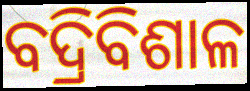
ବଦ୍ରିବିଶାଳ